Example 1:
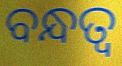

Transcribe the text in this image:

ବନ୍ଧତ୍ୱ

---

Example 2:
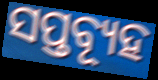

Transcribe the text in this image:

ସପ୍ତବ୍ୟୂହ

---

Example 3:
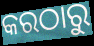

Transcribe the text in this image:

କରଠାରୁ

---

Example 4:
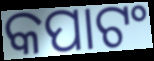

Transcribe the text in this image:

କପାଟଂ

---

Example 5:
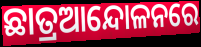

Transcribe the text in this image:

ଛାତ୍ରଆନ୍ଦୋଳନରେ